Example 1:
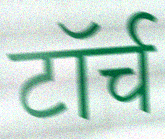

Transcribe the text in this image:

टॉर्च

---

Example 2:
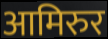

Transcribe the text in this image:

आमिरुर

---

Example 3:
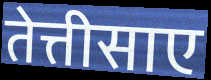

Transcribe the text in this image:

तेत्तीसाए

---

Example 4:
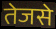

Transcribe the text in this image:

तेजसे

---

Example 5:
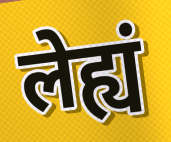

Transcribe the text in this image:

लेह्यं